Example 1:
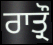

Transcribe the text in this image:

ਰਾਤ੍ਰੌ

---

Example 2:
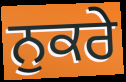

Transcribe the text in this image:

ਨੁਕਰੇ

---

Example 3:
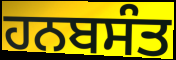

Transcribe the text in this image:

ਹਨਬਸੰਤ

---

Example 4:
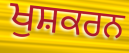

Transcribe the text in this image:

ਖੁਸ਼ਕਰਨ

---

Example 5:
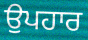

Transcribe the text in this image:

ਉਪਹਾਰ